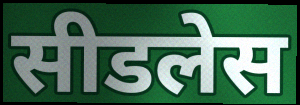
सीडलेस